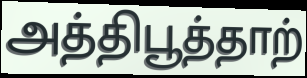
அத்திபூத்தாற்